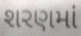
શરણમાં